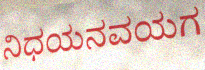
ನಿಧಯನವಯಗ